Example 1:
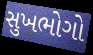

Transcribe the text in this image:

સુખભોગો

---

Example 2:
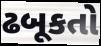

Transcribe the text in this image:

ઢબૂકતો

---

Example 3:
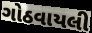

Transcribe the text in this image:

ગોઠવાયલી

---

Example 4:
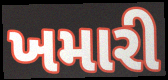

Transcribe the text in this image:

ખમારી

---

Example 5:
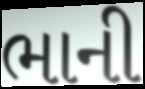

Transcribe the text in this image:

ભાની